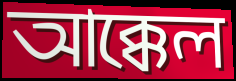
আক্কেল